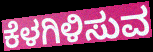
ಕೆಳಗಿಳಿಸುವ